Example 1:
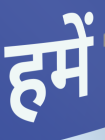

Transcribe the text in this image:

हमें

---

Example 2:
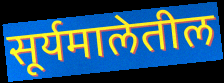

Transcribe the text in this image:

सूर्यमालेतील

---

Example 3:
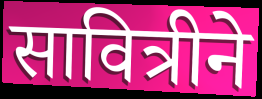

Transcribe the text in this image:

सावित्रीने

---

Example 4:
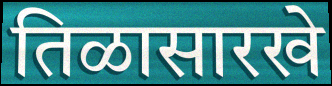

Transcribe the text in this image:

तिळासारखे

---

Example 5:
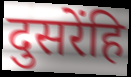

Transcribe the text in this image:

दुसरेंहि